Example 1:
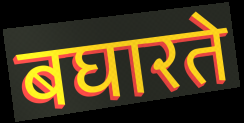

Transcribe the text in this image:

बघारते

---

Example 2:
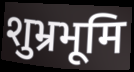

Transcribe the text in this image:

शुभ्रभूमि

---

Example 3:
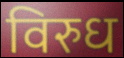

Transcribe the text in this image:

विरुध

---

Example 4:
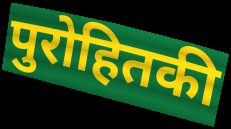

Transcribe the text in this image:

पुरोहितकी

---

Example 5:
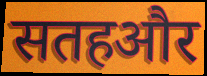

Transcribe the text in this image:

सतहऔर